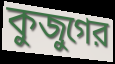
কুজুগের